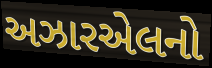
અઝારએલનો